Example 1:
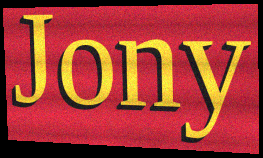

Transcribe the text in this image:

Jony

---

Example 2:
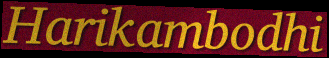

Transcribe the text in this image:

Harikambodhi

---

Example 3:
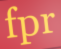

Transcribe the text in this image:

fpr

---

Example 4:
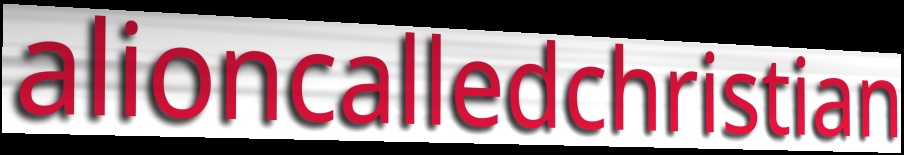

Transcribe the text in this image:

alioncalledchristian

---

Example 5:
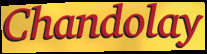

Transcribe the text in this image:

Chandolay